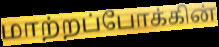
மாற்றப்போக்கின்